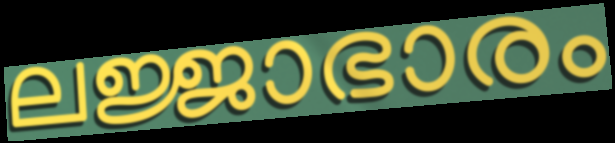
ലജ്ജാഭാരം